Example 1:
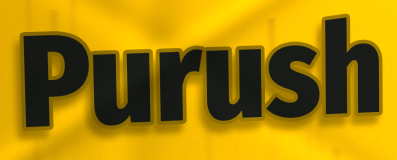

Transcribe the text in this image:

Purush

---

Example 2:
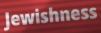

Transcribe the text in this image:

Jewishness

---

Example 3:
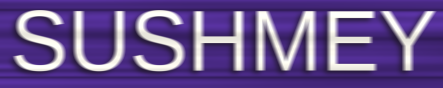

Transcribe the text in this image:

SUSHMEY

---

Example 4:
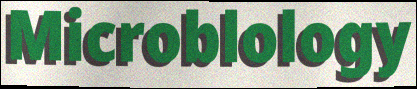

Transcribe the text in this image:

Microblology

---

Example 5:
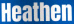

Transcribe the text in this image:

Heathen